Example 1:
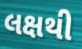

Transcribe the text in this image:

લક્ષથી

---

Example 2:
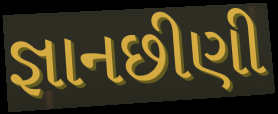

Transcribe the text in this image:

જ્ઞાનછીણી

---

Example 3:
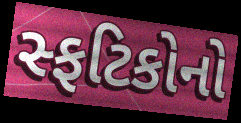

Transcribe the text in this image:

સ્ફટિકોનો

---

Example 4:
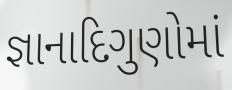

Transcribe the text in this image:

જ્ઞાનાદિગુણોમાં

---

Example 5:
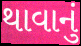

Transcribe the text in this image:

થાવાનું